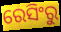
ରେସିଂରୁ